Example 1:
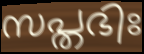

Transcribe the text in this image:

സപ്തഭിഃ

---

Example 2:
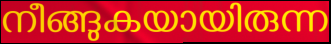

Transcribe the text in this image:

നീങ്ങുകയായിരുന്ന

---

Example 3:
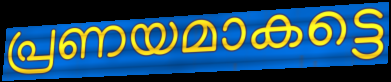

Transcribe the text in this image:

പ്രണയമാകട്ടെ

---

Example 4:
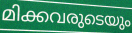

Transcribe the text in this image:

മിക്കവരുടെയും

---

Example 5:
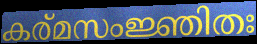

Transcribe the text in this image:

കര്മസംജ്ഞിതഃ